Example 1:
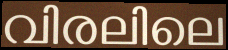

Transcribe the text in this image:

വിരലിലെ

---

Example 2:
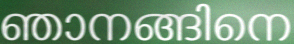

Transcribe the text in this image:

ഞാനങ്ങിനെ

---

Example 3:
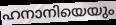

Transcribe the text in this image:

ഹനാനിയെയും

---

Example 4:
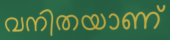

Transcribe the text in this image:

വനിതയാണ്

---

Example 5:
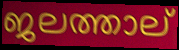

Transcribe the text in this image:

ജലത്താല്